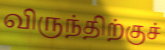
விருந்திற்குச்